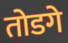
तोडगे